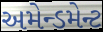
અમેન્ડમેન્ટ